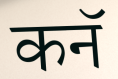
कनॅ